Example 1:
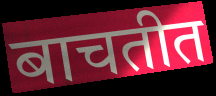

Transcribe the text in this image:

बाचतीत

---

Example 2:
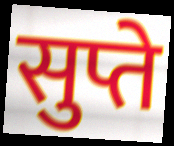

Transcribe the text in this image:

सुप्ते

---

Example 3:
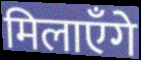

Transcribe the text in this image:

मिलाएँगे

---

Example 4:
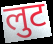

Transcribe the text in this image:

लुट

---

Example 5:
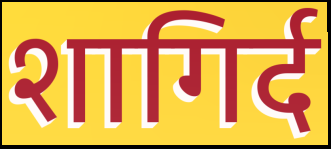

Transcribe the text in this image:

शागिर्द